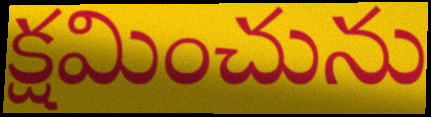
క్షమించును